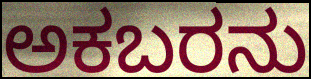
ಅಕಬರನು